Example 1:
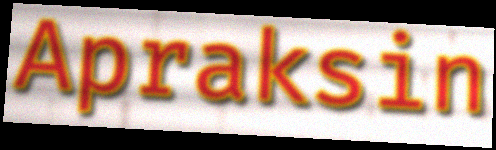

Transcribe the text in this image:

Apraksin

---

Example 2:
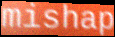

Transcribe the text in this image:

mishap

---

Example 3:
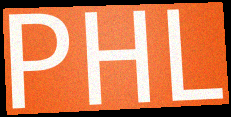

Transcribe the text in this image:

PHL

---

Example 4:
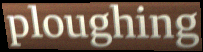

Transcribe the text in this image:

ploughing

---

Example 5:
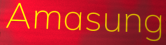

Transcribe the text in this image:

Amasung